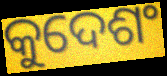
କୁଦେଶଂ